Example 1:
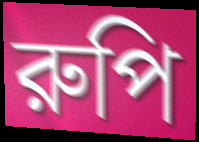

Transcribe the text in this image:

রুপি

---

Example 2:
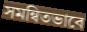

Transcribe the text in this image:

সমন্বিতভাবে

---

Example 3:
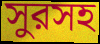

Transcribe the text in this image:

সুরসহ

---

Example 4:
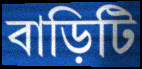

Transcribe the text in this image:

বাড়িটি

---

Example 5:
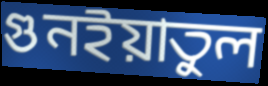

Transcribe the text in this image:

গুনইয়াতুল